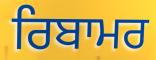
ਰਿਬਾਮਰ